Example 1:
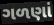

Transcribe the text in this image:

ગળણાં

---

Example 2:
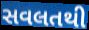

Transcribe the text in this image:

સવલતથી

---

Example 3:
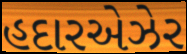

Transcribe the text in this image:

હદારએઝેર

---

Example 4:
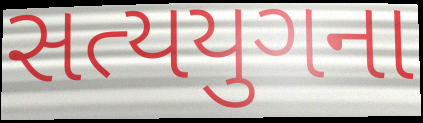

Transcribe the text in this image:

સત્યયુગના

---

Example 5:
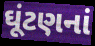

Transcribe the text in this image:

ઘૂંટણનાં